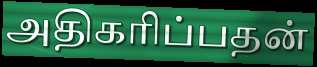
அதிகரிப்பதன்